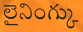
లైనింగ్కు